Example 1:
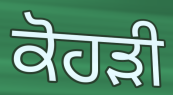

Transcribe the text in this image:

ਕੋਹੜੀ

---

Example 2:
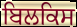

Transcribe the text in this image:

ਬਿਲਕਿਸ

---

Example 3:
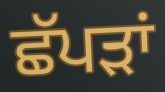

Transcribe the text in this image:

ਛੱਪੜਾਂ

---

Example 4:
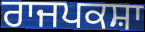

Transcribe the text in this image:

ਰਾਜਪਕਸ਼ਾ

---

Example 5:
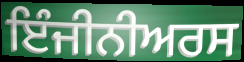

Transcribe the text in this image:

ਇੰਜੀਨੀਅਰਸ